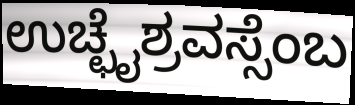
ಉಚ್ಛೈಶ್ರವಸ್ಸೆಂಬ